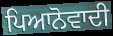
ਪਿਆਨੋਵਾਦੀ